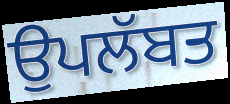
ਉਪਲੱਬਤ